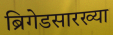
ब्रिगेडसारख्या